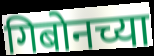
गिबोनच्या